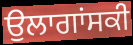
ਉਲਾਗਾਂਸਕੀ